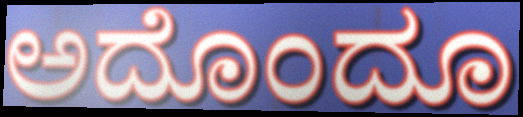
ಅದೊಂದೂ